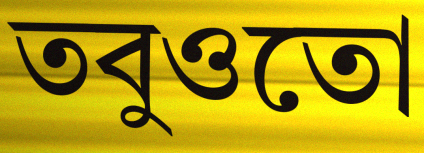
তবুওতো